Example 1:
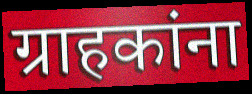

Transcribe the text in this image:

ग्राहकांना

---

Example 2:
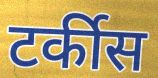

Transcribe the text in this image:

टर्कीस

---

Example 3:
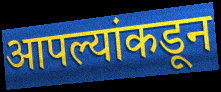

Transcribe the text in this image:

आपल्यांकडून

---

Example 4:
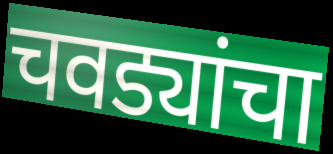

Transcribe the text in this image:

चवड्यांचा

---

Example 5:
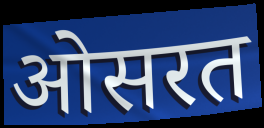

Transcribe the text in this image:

ओसरत